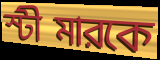
স্টীমারকে